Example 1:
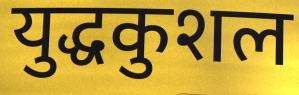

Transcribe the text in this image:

युद्धकुशल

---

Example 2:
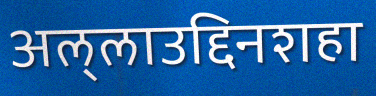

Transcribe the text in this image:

अल्लाउद्दिनशहा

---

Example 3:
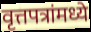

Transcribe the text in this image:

वृत्तपत्रांमध्ये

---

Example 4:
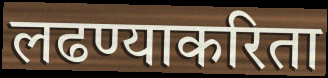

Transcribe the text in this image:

लढण्याकरिता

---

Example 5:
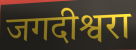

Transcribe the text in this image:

जगदीश्वरा